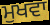
ਮੁਖਵਾ